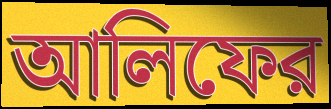
আলিফের